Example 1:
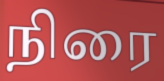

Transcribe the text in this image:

நிரை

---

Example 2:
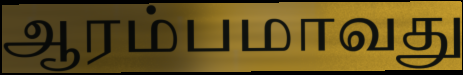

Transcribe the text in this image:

ஆரம்பமாவது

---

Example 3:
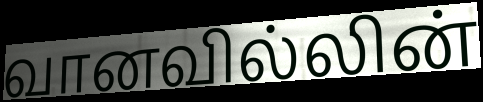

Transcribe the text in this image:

வானவில்லின்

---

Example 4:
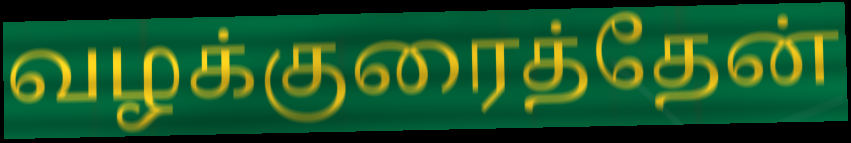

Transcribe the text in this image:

வழக்குரைத்தேன்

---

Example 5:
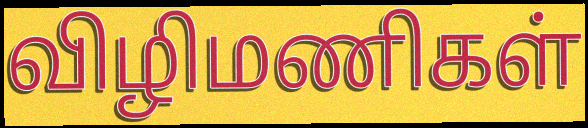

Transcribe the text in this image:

விழிமணிகள்